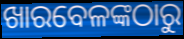
ଖାରବେଳଙ୍କଠାରୁ